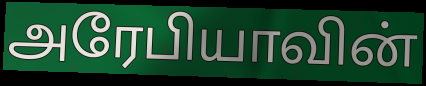
அரேபியாவின்